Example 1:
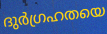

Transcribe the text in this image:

ദുർഗ്രഹതയെ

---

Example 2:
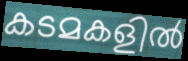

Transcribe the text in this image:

കടമകളിൽ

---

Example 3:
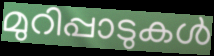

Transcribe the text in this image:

മുറിപ്പാടുകൾ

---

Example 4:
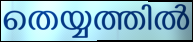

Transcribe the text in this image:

തെയ്യത്തിൽ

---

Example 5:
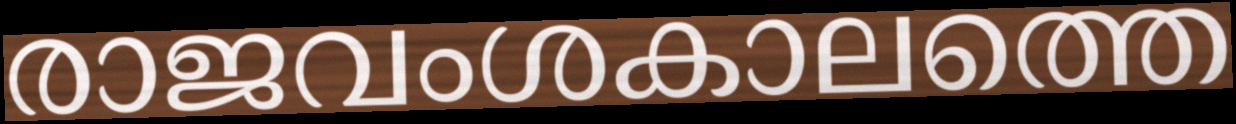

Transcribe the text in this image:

രാജവംശകാലത്തെ